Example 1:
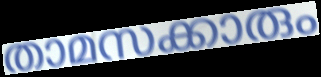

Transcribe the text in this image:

താമസക്കാരും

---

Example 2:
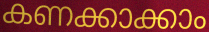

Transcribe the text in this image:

കണക്കാക്കാം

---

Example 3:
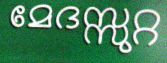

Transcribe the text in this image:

മേദസ്സുറ്റ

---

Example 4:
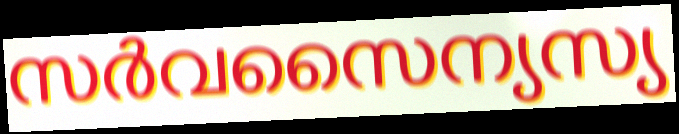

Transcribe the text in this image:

സർവസൈന്യസ്യ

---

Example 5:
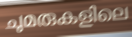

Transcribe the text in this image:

ചുമരുകളിലെ